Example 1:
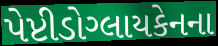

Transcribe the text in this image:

પેપ્ટીડોગ્લાયકેનના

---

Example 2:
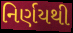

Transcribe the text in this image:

નિર્ણયથી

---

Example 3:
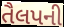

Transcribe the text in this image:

તૈલપની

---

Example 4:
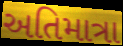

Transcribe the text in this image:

અતિમાત્રા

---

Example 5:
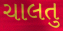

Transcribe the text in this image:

ચાલતુ